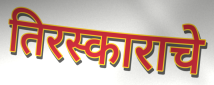
तिरस्काराचे